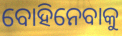
ବୋହିନେବାକୁ